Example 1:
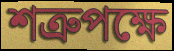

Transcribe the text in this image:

শত্রুপক্ষে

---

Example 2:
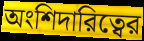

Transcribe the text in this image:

অংশিদারিত্বের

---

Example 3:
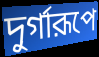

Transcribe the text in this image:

দুর্গারূপে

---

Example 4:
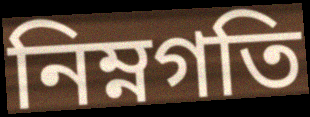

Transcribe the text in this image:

নিম্নগতি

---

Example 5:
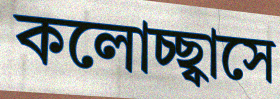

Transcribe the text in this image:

কলোচ্ছ্বাসে